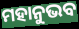
ମହାନୁଭବ